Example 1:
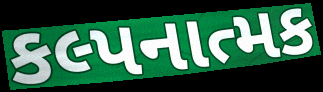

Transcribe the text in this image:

કલ્પનાત્મક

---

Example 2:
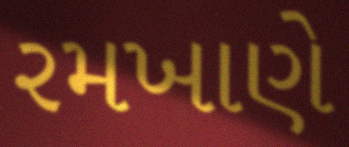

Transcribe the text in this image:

રમખાણે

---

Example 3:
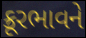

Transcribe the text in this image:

ક્રૂરભાવને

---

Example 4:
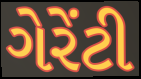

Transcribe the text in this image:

ગેરેંટી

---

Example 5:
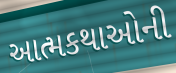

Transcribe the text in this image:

આત્મકથાઓની